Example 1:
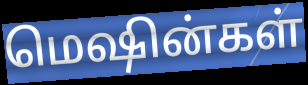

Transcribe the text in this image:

மெஷின்கள்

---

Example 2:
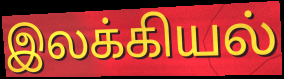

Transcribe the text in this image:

இலக்கியல்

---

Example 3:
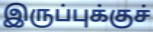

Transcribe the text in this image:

இருப்புக்குச்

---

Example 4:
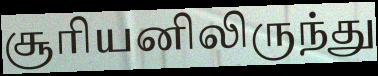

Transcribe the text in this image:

சூரியனிலிருந்து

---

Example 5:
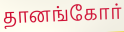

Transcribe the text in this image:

தானங்கோர்